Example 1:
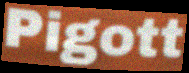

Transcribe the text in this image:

Pigott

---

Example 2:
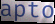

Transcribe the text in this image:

apto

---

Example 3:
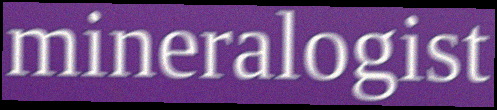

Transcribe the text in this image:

mineralogist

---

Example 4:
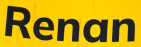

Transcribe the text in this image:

Renan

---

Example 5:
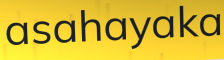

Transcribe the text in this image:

asahayaka